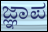
ಜ್ಞಾಪ